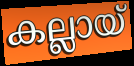
കല്ലായ്